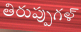
తిరుప్పుగళ్